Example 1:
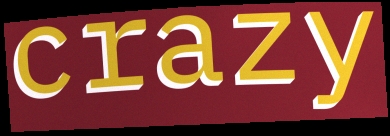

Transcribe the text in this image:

crazy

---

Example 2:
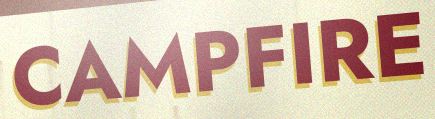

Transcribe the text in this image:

CAMPFIRE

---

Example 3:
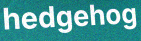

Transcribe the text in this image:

hedgehog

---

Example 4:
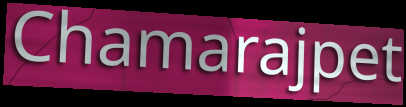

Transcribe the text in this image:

Chamarajpet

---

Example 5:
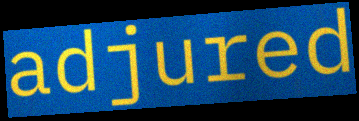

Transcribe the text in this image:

adjured